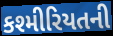
કશ્મીરિયતની